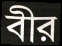
বীর